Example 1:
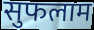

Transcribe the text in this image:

सुफलाम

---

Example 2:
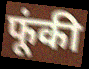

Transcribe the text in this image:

फूंकी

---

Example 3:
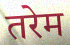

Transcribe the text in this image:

तरेम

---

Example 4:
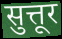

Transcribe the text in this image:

सुत्तूर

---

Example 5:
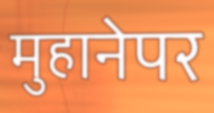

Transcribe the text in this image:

मुहानेपर